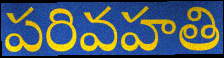
పరివహతి